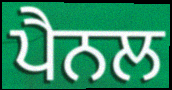
ਪੈਨਲ